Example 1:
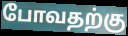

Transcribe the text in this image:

போவதற்கு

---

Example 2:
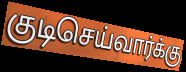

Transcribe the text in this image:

குடிசெய்வார்க்கு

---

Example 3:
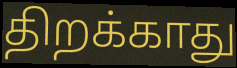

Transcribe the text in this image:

திறக்காது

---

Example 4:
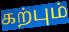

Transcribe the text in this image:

கற்பும்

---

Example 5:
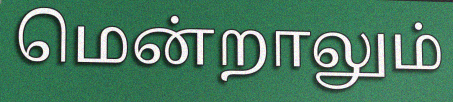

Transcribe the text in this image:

மென்றாலும்